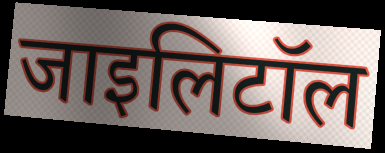
जाइलिटॉल